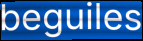
beguiles